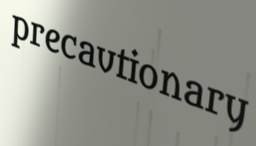
precautionary